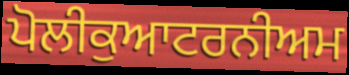
ਪੋਲੀਕੁਆਟਰਨੀਅਮ